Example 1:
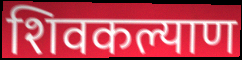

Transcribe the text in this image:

शिवकल्याण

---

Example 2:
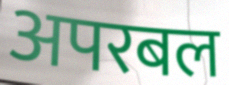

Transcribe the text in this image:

अपरबल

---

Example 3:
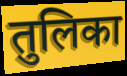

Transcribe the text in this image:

तुलिका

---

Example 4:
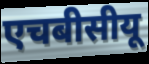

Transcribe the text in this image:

एचबीसीयू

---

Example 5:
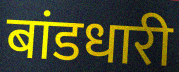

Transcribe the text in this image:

बांडधारी